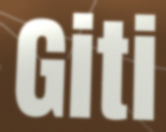
Giti